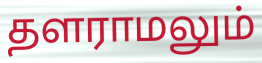
தளராமலும்